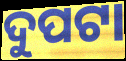
ଦୁପଟା